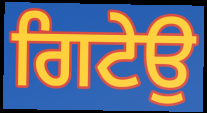
ਗਿਟੇਉ